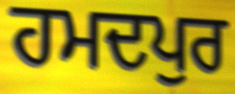
ਹਮਦਪੁਰ